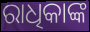
ରାଧିକାଙ୍କ